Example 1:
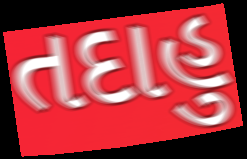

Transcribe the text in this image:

તદાહુ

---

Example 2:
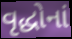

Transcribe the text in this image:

વૃદ્ધોનાં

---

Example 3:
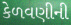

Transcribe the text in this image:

કેળવણીની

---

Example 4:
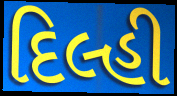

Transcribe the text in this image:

દિલ્હી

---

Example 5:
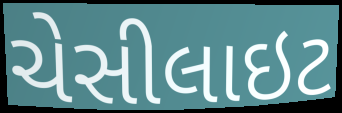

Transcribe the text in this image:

ચેસીલાઇટ